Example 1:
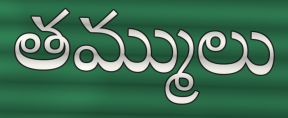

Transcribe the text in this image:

తమ్ములు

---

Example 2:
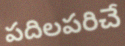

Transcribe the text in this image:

పదిలపరిచే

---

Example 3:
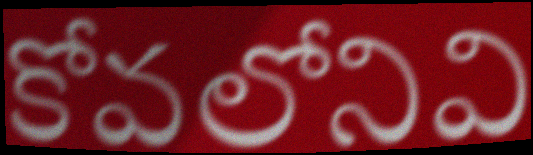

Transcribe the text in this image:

కోవలోనివి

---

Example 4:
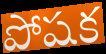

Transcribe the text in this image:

పోషక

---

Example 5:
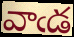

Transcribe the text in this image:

వాఁడ